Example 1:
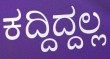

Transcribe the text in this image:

ಕದ್ದಿದ್ದಲ್ಲ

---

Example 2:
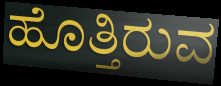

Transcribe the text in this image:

ಹೊತ್ತಿರುವ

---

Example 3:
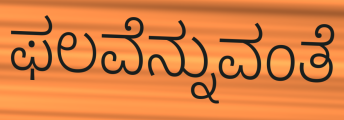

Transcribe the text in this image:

ಫಲವೆನ್ನುವಂತೆ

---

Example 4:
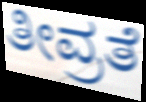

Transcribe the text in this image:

ತೀವ್ರತೆ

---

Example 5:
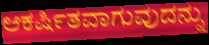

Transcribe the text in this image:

ಆಕರ್ಷಿತವಾಗುವುದನ್ನು